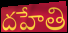
దహేతి